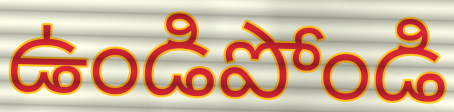
ఉండిపోండి